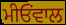
ਮੀਓਂਵਾਲ